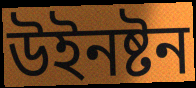
উইনষ্টন